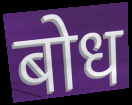
बोध